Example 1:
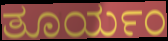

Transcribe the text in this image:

ತೂರ್ಯಂ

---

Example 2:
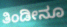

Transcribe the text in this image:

ತಿಂಡೀನೂ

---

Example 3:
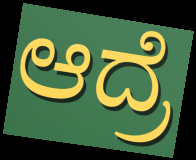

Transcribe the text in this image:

ಆದ್ರೆ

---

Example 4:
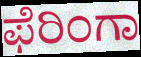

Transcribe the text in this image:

ಫೆರಿಂಗಾ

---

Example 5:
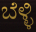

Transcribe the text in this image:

ಬೆಳ್ಳಿ